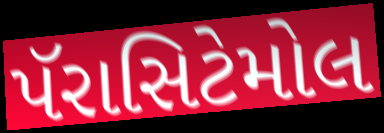
પૅરાસિટેમોલ